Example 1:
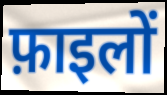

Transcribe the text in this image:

फ़ाइलों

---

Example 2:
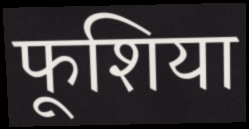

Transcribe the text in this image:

फूशिया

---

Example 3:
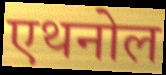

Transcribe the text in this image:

एथनोल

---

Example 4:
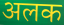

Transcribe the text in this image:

अलक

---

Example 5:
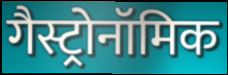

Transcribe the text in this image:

गैस्ट्रोनॉमिक